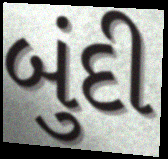
બુંદી